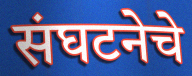
संघटनेचे